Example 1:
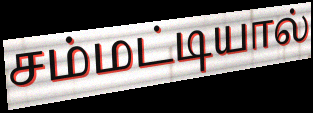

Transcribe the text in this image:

சம்மட்டியால்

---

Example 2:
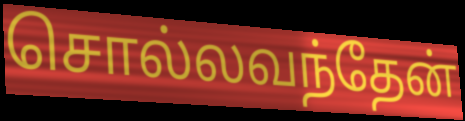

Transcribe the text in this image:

சொல்லவந்தேன்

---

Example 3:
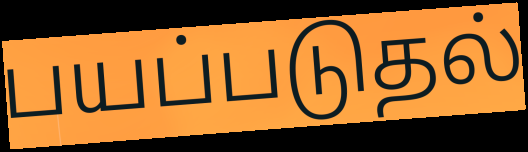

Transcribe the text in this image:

பயப்படுதல்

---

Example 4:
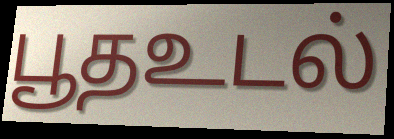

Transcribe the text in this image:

பூதஉடல்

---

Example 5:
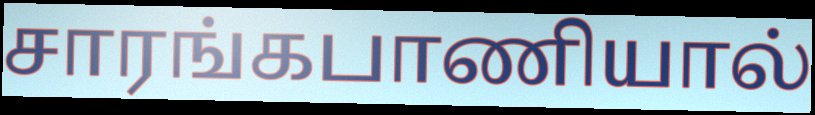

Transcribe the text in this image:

சாரங்கபாணியால்